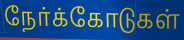
நேர்க்கோடுகள்